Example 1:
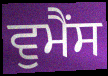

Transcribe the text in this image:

ਵੁਮੈਂਸ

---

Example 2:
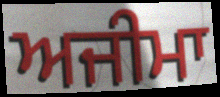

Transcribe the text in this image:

ਅਜੀਮਾ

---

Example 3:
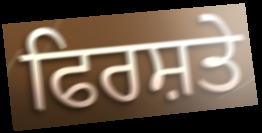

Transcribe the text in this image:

ਫਿਰਸ਼ਤੇ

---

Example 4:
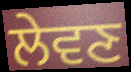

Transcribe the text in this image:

ਲੇਵਣ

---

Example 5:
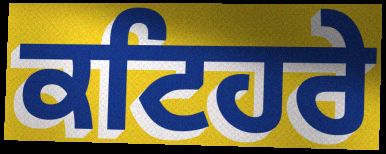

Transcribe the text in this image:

ਕਟਿਹਰੇ